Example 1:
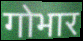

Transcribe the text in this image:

गोभार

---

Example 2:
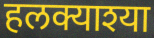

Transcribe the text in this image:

हलक्याश्या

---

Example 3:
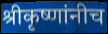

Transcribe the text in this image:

श्रीकृष्णांनीच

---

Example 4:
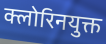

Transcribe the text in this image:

क्लोरिनयुक्त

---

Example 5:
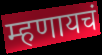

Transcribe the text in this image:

म्हणायचं